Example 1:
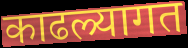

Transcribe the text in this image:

काढल्यागत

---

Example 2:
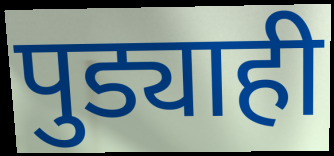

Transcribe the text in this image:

पुड्याही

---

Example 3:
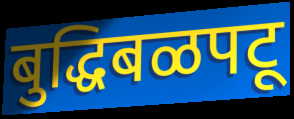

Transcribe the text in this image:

बुद्धिबळपटू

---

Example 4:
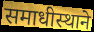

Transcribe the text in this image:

समाधीस्थाने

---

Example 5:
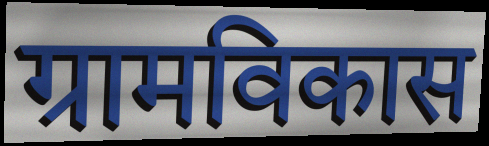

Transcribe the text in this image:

ग्रामविकास